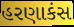
હરણાકંસ